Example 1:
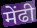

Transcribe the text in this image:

मेंढी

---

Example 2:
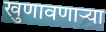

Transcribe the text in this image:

खुणावणाऱ्या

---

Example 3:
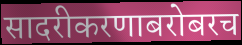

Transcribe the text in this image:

सादरीकरणाबरोबरच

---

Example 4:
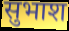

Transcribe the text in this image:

सुभाश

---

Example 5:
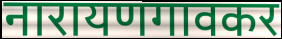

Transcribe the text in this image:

नारायणगावकर